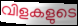
വിളകളുടെ